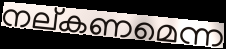
നല്കണമെന്ന